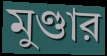
মুণ্ডার